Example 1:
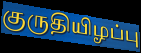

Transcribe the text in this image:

குருதியிழப்பு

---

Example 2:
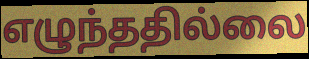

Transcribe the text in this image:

எழுந்ததில்லை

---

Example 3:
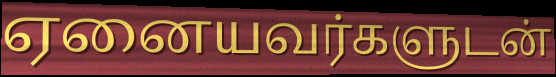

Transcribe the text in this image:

ஏனையவர்களுடன்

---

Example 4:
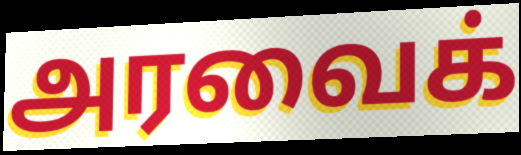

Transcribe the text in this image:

அரவைக்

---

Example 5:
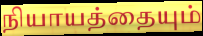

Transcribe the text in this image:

நியாயத்தையும்